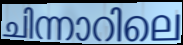
ചിന്നാറിലെ